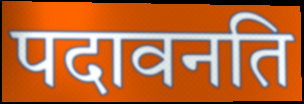
पदावनति